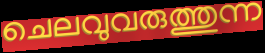
ചെലവുവരുത്തുന്ന